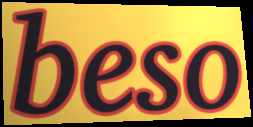
beso